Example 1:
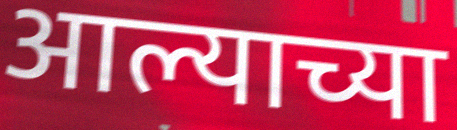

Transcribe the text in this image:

आल्याच्या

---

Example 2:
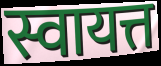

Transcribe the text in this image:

स्वायत्त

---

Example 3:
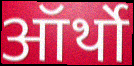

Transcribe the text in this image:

ऑर्थो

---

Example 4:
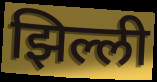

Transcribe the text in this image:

झिल्ली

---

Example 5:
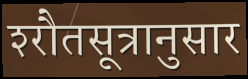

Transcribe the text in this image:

श्रौतसूत्रानुसार